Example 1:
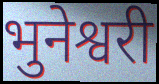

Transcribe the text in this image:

भुनेश्वरी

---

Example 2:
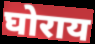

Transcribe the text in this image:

घोराय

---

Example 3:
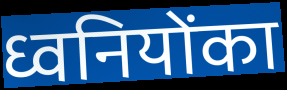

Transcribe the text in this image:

ध्वनियोंका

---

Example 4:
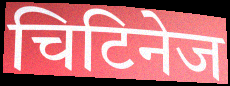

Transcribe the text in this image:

चिटिनेज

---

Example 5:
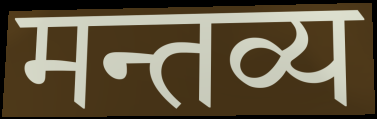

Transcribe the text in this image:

मन्तव्य